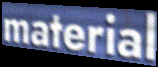
material